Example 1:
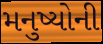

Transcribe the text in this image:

મનુષ્યોની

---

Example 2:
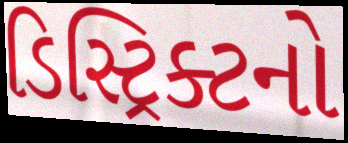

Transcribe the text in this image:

ડિસ્ટ્રિક્ટનો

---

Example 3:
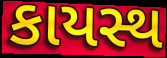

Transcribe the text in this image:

કાયસ્થ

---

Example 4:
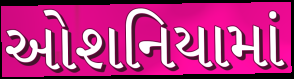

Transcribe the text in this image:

ઓશનિયામાં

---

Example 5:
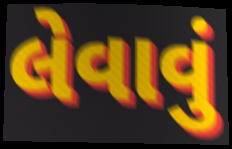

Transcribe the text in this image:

લેવાવું